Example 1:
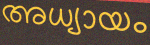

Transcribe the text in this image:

അധ്യായം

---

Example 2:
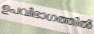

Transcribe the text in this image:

ഉപവിഭാഗത്തിൽ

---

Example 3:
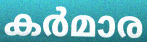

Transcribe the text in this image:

കർമാര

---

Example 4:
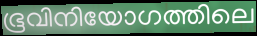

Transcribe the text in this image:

ഭൂവിനിയോഗത്തിലെ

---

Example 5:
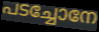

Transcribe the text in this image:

പടച്ചോനേ